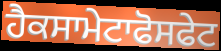
ਹੈਕਸਾਮੇਟਾਫੋਸਫੇਟ